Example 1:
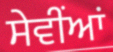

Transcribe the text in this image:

ਸੇਵੀਂਆਂ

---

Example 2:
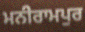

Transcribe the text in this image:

ਮਨੀਰਾਮਪੁਰ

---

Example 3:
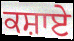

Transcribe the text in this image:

ਕਸ਼ਾਏ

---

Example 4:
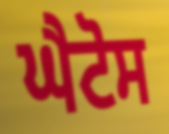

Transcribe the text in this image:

ਘੈਟੋਸ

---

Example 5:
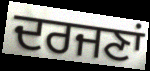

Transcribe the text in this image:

ਦਰਜਣਾਂ